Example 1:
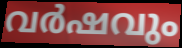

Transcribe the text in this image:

വർഷവും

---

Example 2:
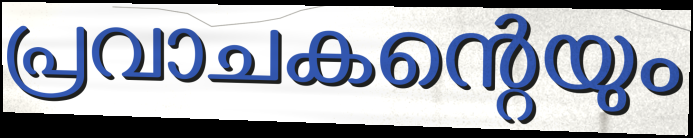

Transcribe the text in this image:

പ്രവാചകന്റെയും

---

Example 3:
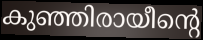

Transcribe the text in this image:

കുഞ്ഞിരായീന്റെ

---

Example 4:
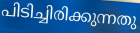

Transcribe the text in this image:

പിടിച്ചിരിക്കുന്നതു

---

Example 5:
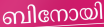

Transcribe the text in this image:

ബിനോയി